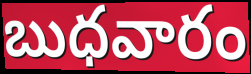
బుధవారం